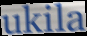
ukila